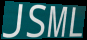
JSML